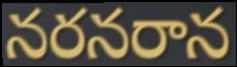
నరనరాన